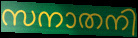
സനാതനി